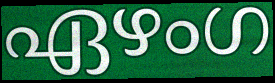
ഏഴംഗ